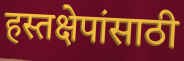
हस्तक्षेपांसाठी